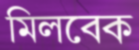
মিলবেক